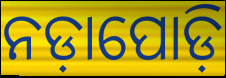
ନଡ଼ାପୋଡ଼ି